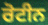
ਰੋਟੀਨ